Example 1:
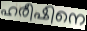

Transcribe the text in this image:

ഹരീഷിനെ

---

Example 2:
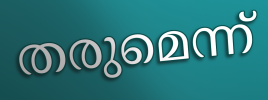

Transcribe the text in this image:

തരുമെന്ന്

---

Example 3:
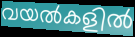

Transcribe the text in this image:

വയൽകളിൽ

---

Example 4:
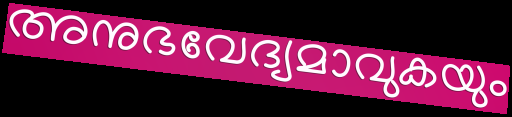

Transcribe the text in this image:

അനുഭവേദ്യമാവുകയും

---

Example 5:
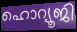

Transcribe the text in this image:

ഹൊറ്യൂജി